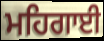
ਮਹਿਗਾਈ